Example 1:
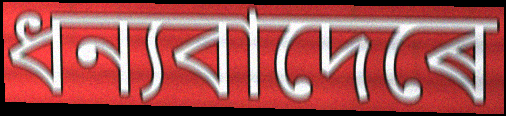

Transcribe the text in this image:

ধন্যবাদেৰে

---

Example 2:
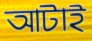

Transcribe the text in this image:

আটাই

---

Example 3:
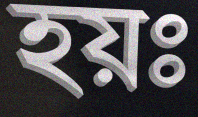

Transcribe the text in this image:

হয়ঃ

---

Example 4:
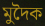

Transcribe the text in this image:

মুদৈক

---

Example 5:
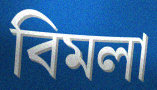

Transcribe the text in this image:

বিমলা